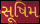
સૂષિમ